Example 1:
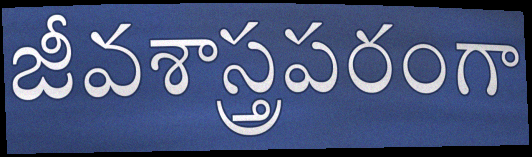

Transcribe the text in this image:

జీవశాస్త్రపరంగా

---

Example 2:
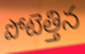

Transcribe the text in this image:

పోటెత్తిన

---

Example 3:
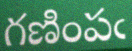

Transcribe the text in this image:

గణింపఁ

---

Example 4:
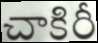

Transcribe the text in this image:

చాకిరీ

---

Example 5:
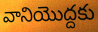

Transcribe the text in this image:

వానియొద్దకు